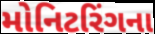
મોનિટરિંગના